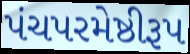
પંચપરમેષ્ઠીરૂપ